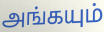
அங்கயும்